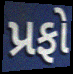
પ્રફો